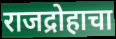
राजद्रोहाचा